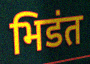
भिडंत